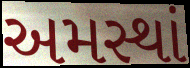
અમસ્થાં